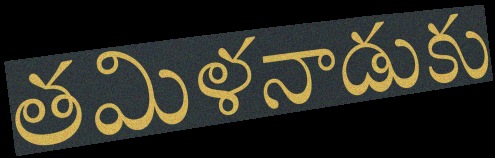
తమిళనాడుకు